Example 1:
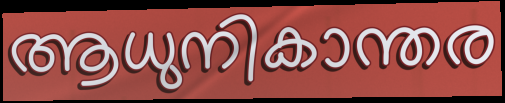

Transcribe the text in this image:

ആധുനികാന്തര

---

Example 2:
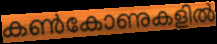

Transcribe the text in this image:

കൺകോണുകളിൽ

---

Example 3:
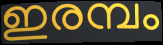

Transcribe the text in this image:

ഇരമ്പം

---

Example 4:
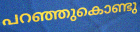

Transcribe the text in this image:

പറഞ്ഞുകൊണ്ടു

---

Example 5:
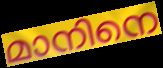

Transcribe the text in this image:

മാനിനെ